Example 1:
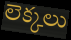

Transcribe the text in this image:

లెక్కలు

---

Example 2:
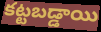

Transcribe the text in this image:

కట్టబడ్డాయి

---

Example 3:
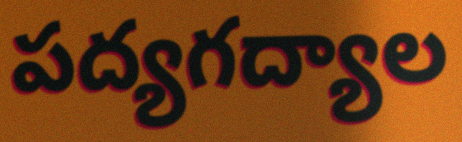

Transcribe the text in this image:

పద్యగద్యాల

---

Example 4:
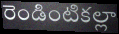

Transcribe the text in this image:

రెండింటికల్లా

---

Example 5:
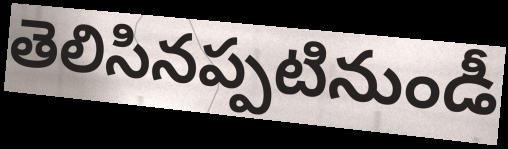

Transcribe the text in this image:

తెలిసినప్పటినుండీ